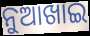
ନୁଆଖାଇ